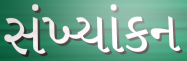
સંખ્યાંકન